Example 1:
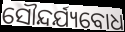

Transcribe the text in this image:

ସୌନ୍ଦର୍ଯ୍ୟବୋଧ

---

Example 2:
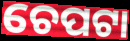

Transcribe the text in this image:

ଚେପଟା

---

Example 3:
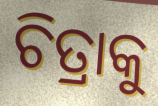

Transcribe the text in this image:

ଚିତ୍ରାକୁ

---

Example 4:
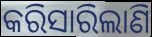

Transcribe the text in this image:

କରିସାରିଲାଣି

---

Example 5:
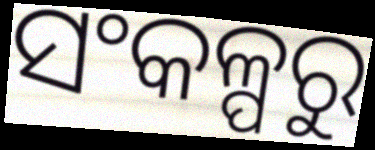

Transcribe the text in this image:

ସଂକଳ୍ପରୁ